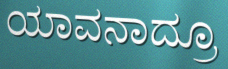
ಯಾವನಾದ್ರೂ